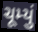
ચૂમ્યું